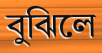
বুঝিলে